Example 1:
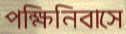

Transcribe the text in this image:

পক্ষিনিবাসে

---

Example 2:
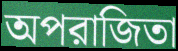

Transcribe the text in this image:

অপরাজিতা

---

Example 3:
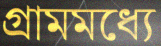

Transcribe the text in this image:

গ্রামমধ্যে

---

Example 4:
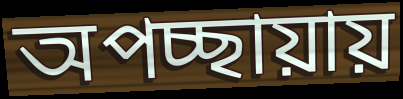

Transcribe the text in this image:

অপচ্ছায়ায়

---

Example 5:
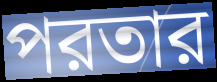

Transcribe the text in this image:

পরতার